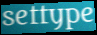
settype